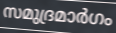
സമുദ്രമാർഗം